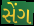
સેંગ